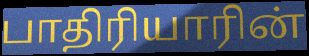
பாதிரியாரின்